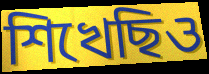
শিখেছিও